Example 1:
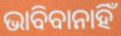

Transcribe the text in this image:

ଭାବିବାନାହିଁ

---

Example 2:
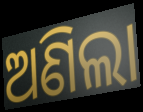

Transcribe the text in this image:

ଅଣିଲା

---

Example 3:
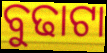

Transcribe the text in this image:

ବୁଢାଟା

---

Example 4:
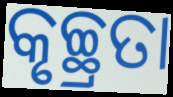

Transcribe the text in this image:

କୃଚ୍ଛ୍ରତା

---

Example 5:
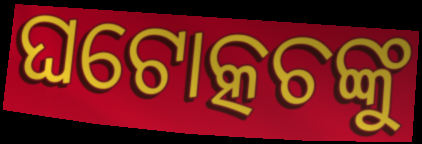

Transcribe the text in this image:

ଘଟୋତ୍କଚଙ୍କୁ